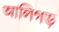
আলিগড়